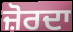
ਜ਼ੋਰਦਾ